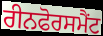
ਰੀਨਫੋਰਸਮੈਂਟ